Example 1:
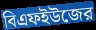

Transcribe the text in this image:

বিএফইউজের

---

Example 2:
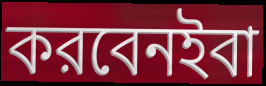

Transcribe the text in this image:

করবেনইবা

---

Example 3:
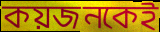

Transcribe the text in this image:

কয়জনকেই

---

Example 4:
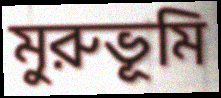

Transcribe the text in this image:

মুরুভূমি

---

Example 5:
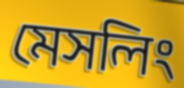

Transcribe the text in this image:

মেসলিং